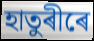
হাতুৰীৰে